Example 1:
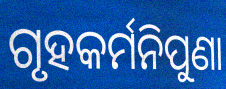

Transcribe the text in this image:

ଗୃହକର୍ମନିପୁଣା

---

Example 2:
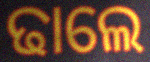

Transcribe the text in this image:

ଢାଲେ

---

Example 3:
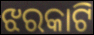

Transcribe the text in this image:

ଝରକାଟି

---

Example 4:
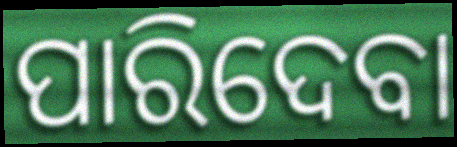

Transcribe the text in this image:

ପାରିଦେବା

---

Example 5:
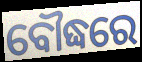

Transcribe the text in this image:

ବୌଦ୍ଧରେ